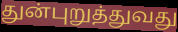
துன்புறுத்துவது